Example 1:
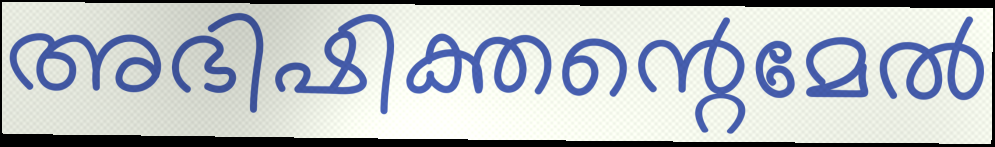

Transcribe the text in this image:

അഭിഷിക്തന്റെമേൽ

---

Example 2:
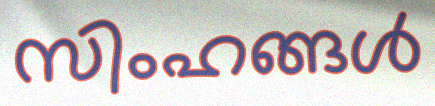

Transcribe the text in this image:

സിംഹങ്ങൾ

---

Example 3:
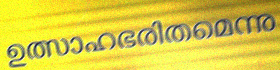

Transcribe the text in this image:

ഉത്സാഹഭരിതമെന്നു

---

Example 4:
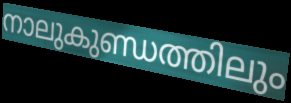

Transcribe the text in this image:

നാലുകുണ്ഡത്തിലും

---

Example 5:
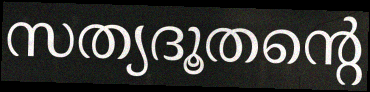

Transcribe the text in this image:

സത്യദൂതന്റെ